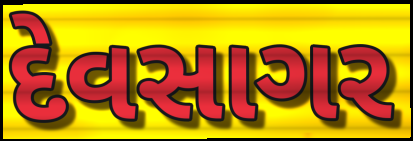
દેવસાગર